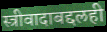
स्त्रीवादाबद्दलही